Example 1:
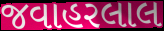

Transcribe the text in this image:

જવાહરલાલ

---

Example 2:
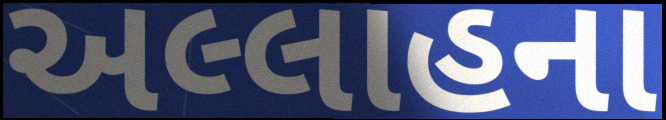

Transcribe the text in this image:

અલ્લાહના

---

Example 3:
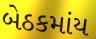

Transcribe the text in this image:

બેઠકમાંય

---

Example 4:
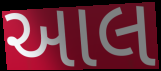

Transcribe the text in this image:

આલ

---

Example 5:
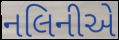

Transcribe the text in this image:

નલિનીએ